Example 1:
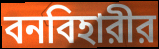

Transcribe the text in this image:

বনবিহারীর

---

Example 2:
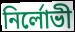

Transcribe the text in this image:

নির্লোভী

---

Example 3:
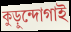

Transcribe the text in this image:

কুড়ুন্দোগাই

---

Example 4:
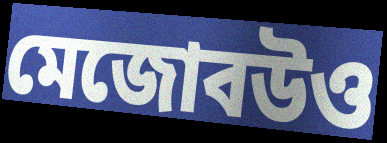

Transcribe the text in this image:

মেজোবউও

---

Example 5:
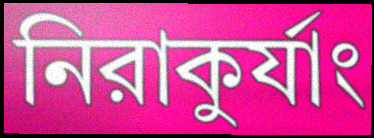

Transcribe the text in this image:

নিরাকুর্যাং